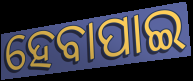
ହେବାପାଇ